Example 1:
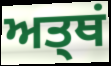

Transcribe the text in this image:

ਅਤ੍ਥਂ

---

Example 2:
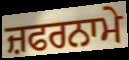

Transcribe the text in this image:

ਜ਼ਫਰਨਾਮੇ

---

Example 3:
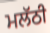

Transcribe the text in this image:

ਮਲੱਠੀ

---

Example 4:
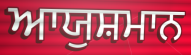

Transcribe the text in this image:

ਆਯੁਸ਼ਮਾਨ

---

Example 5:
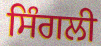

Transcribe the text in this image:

ਸਿੰਗਲੀ